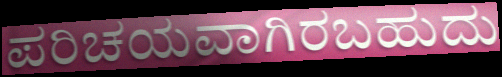
ಪರಿಚಯವಾಗಿರಬಹುದು